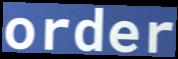
order